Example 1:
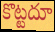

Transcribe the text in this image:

కొట్టదూ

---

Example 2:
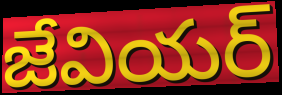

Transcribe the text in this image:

జేవియర్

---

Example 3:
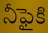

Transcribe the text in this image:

నీఫైకి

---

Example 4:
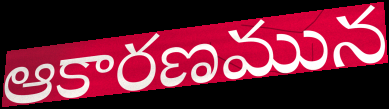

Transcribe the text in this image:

ఆకారణమున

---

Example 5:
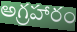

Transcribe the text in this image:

అగ్రహారం